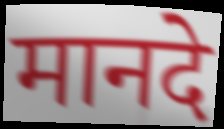
मानदे